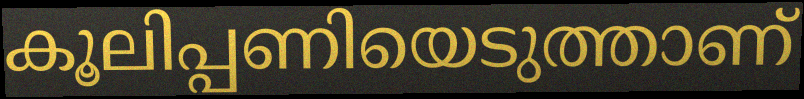
കൂലിപ്പണിയെടുത്താണ്